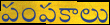
పంపకాలు